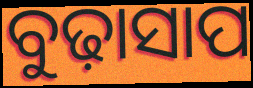
ବୁଢ଼ାସାପ